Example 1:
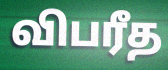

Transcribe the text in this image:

விபரீத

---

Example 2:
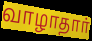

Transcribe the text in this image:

வாழாதார்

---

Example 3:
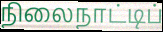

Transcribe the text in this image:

நிலைநாட்டிப்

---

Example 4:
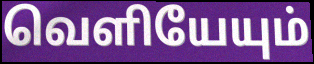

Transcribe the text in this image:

வெளியேயும்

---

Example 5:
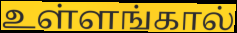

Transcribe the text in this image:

உள்ளங்கால்